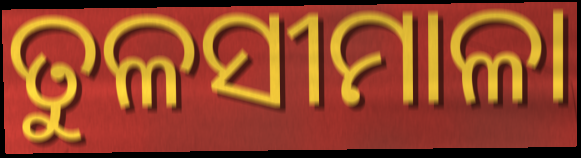
ତୁଳସୀମାଳା